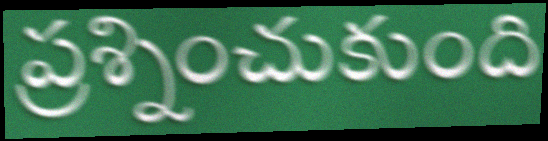
ప్రశ్నించుకుంది